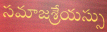
సమాజశ్రేయస్సు